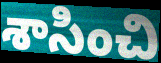
శాసించి